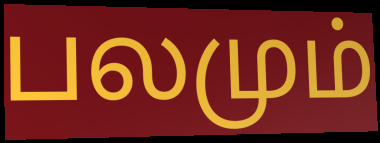
பலமும்